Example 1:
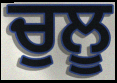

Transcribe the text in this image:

ਚੁਲੂ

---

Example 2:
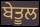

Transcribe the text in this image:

ਬੇਤੂਲ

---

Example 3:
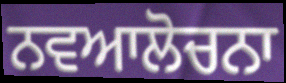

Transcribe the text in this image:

ਨਵਆਲੋਚਨਾ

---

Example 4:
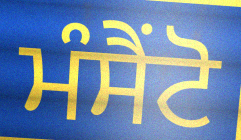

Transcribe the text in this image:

ਮੰਸੈਂਟੋ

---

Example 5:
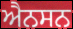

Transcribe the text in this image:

ਐਨਸਨ